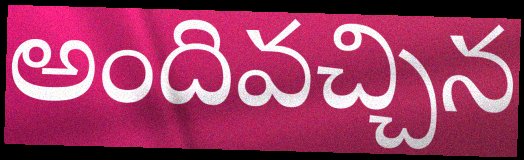
అందివచ్చిన